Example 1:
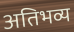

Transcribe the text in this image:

अतिभव्य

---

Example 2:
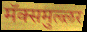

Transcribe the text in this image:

मॅक्समुल्लर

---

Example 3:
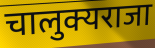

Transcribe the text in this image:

चालुक्यराजा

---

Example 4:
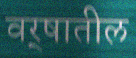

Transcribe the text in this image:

वर्षातील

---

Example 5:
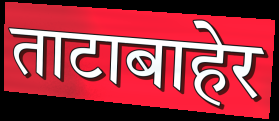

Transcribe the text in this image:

ताटाबाहेर